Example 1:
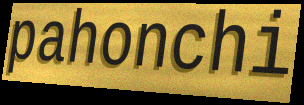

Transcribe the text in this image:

pahonchi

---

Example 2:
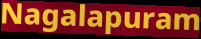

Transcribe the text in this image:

Nagalapuram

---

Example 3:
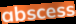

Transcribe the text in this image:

abscess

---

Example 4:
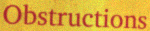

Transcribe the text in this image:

Obstructions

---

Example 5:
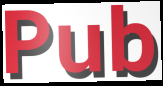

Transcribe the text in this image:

Pub